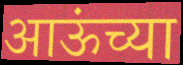
आऊंच्या